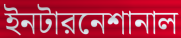
ইনটারনেশানাল